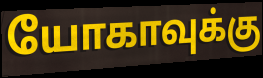
யோகாவுக்கு